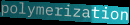
polymerization